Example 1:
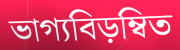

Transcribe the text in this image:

ভাগ্যবিড়ম্বিত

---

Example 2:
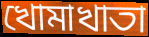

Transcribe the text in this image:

খোমাখাতা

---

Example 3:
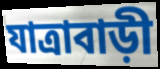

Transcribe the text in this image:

যাত্রাবাড়ী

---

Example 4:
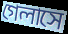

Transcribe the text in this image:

গেলাসে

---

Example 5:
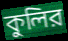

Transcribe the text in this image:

কুলির